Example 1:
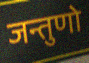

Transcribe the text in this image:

जन्तुणो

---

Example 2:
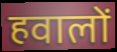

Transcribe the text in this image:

हवालों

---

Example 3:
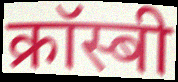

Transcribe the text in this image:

क्रॉस्बी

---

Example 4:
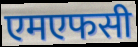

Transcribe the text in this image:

एमएफसी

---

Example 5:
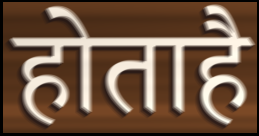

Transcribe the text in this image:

होताहै